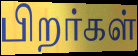
பிறர்கள்